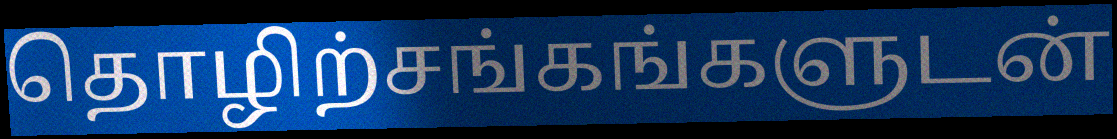
தொழிற்சங்கங்களுடன்